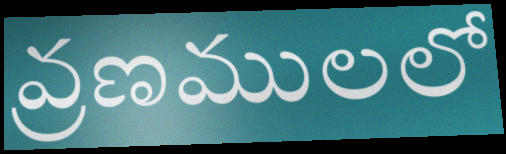
వ్రణములలో